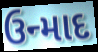
ઉન્માદ